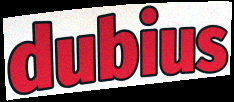
dubius